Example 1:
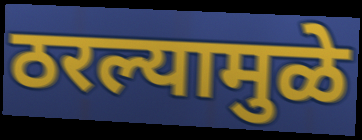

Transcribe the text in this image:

ठरल्यामुळे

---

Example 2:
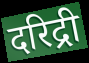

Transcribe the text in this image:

दरिद्री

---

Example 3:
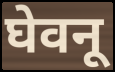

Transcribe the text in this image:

घेवनू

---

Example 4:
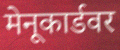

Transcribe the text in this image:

मेनूकार्डवर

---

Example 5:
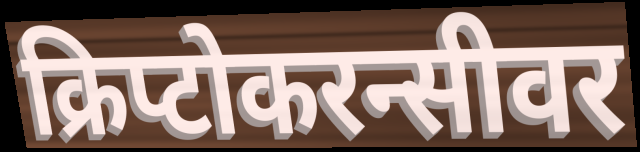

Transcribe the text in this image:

क्रिप्टोकरन्सीवर